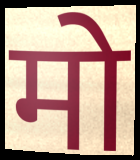
मो